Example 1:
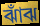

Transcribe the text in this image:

ঝাঁঝ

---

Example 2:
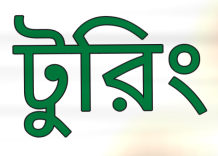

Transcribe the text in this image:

টুরিং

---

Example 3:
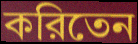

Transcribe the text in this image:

করিতেন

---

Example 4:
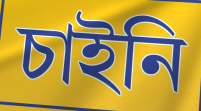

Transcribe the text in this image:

চাইনি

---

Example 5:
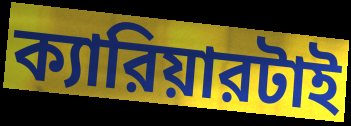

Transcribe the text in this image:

ক্যারিয়ারটাই